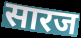
सारज